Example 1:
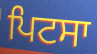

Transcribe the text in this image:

ਪਿਟਸਾ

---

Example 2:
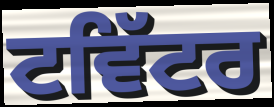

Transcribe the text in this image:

ਟਵਿੱਟਰ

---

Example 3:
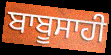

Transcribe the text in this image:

ਬਾਬੂਸਾਹੀ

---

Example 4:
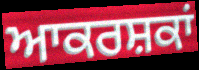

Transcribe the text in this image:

ਆਕਰਸ਼ਕਾਂ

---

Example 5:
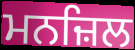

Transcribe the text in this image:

ਮਨਜ਼ਿਲ